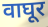
वाघूर